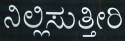
ನಿಲ್ಲಿಸುತ್ತೀರಿ